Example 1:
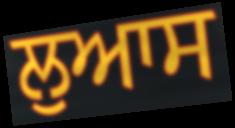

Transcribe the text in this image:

ਲੁਆਸ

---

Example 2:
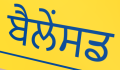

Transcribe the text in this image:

ਬੈਲੇਂਸਡ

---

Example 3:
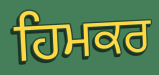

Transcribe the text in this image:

ਹਿਮਕਰ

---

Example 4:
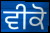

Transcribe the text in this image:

ਵੀਕੋ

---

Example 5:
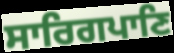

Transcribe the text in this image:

ਸਾਰਿਗਪਾਣਿ